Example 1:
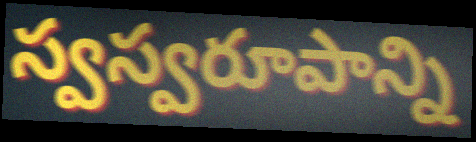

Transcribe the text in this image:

స్వస్వరూపాన్ని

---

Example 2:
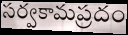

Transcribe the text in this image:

సర్వకామప్రదం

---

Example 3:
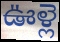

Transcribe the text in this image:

ఊళ్లె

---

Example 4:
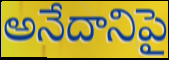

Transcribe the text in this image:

అనేదానిపై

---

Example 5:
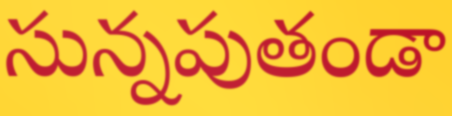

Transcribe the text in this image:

సున్నపుతండా